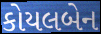
કોયલબેન